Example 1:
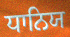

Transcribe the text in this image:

ਧਾਨਿਯ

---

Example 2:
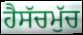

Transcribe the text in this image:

ਹੈਸੱਚਮੁੱਚ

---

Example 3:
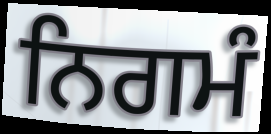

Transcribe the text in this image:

ਨਿਗਮੰ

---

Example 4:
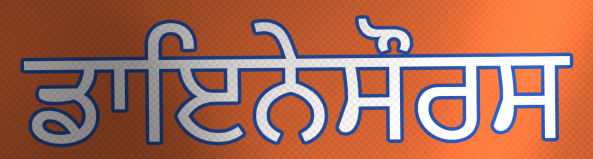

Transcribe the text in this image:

ਡਾਇਨੇਸੌਰਸ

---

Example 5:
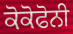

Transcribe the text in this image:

ਕੋਕੋਫੋਨੀ